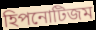
হিপনোটিজম